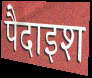
पैदाइश